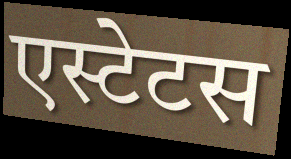
एस्टेटस